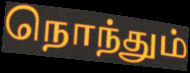
நொந்தும்